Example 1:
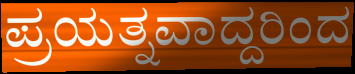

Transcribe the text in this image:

ಪ್ರಯತ್ನವಾದ್ದರಿಂದ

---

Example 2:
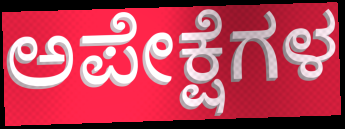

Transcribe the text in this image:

ಅಪೇಕ್ಷೆಗಳ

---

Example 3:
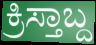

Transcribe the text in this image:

ಕ್ರಿಸ್ತಾಬ್ದ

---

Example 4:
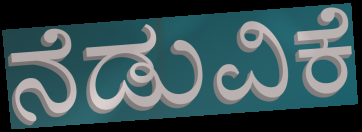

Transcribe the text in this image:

ನೆಡುವಿಕೆ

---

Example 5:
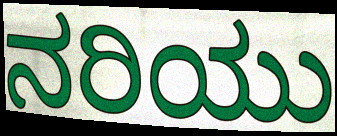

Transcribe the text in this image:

ನರಿಯು